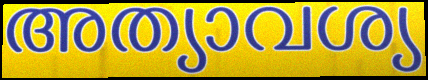
അത്യാവശ്യ